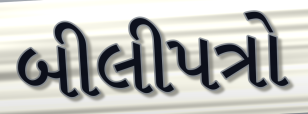
બીલીપત્રો